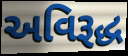
અવિરૂદ્ધ